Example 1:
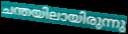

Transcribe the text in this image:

ചന്തയിലായിരുന്നു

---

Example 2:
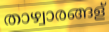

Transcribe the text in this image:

താഴ്വാരങ്ങള്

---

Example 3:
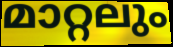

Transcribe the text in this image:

മാറ്റലും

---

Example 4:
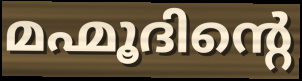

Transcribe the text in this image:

മഹ്മൂദിന്റെ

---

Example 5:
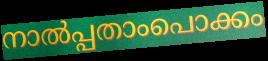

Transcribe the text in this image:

നാൽപ്പതാംപൊക്കം